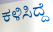
ಕಳಿಸಿದ್ದೆ